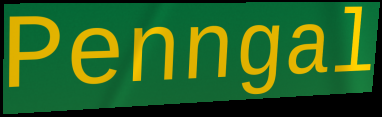
Penngal